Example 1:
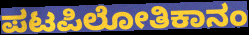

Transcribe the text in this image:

ಪಟಪಿಲೋತಿಕಾನಂ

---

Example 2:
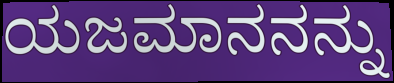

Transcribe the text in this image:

ಯಜಮಾನನನ್ನು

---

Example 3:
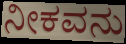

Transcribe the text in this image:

ನೀಕವನು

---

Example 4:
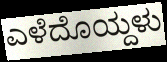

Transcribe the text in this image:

ಎಳೆದೊಯ್ದಳು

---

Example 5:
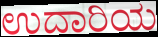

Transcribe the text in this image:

ಉದಾರಿಯ